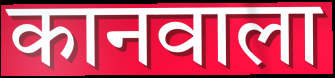
कानवाला